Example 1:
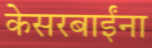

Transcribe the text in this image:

केसरबाईंना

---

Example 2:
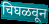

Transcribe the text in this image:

चिघळवून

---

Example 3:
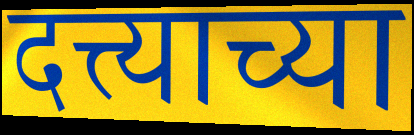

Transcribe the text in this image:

दत्त्याच्या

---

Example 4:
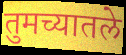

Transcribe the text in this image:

तुमच्यातले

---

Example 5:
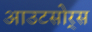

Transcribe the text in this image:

आउटसोर्स